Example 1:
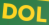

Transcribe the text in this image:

DOL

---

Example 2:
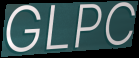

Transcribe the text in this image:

GLPC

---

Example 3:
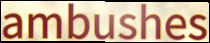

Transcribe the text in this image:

ambushes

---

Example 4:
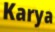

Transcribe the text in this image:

Karya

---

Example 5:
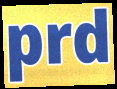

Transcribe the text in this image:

prd